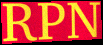
RPN